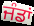
ਜੰਡਾਂ